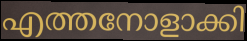
എത്തനോളാക്കി